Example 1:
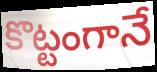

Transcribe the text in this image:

కొట్టంగానే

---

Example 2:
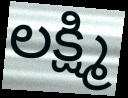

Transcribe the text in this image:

లక్ష్మి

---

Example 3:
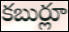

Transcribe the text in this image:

కబుర్లూ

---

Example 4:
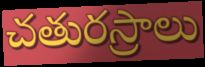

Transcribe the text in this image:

చతురస్రాలు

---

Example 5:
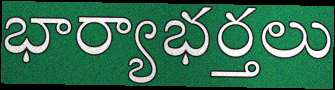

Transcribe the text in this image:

భార్యాభర్తలు